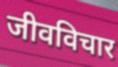
जीवविचार